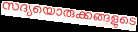
സദ്യയൊരുക്കങ്ങളുടെ